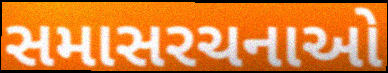
સમાસરચનાઓ